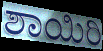
ಶಾಯಿರಿ